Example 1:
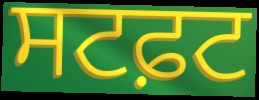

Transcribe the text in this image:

ਸਟਫ਼ਟ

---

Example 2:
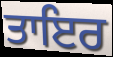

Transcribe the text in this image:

ਤਾਇਰ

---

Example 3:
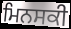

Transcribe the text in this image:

ਮਿਨਸਕੀ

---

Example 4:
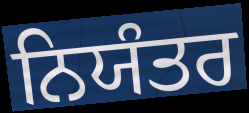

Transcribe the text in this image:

ਨਿਯੰਤਰ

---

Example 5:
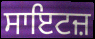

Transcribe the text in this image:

ਸਾਇਟਜ਼